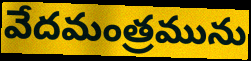
వేదమంత్రమును